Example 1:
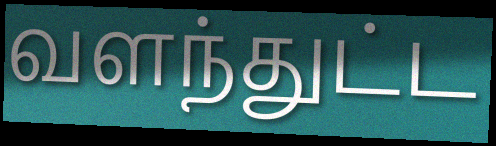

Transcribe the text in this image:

வளந்துட்ட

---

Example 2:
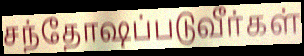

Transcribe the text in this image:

சந்தோஷப்படுவீர்கள்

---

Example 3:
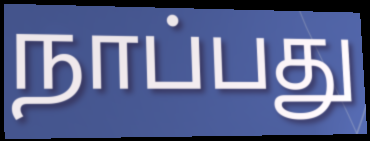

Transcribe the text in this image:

நாப்பது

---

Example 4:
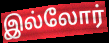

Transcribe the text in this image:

இல்லோர்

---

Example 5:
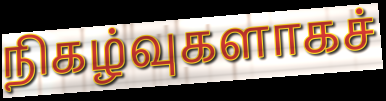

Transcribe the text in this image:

நிகழ்வுகளாகச்